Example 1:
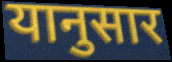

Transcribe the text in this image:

यानुसार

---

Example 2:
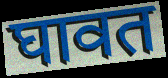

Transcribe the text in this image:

घावत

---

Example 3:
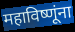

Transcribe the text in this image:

महाविष्णूंना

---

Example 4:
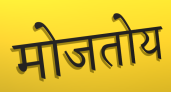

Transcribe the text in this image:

मोजतोय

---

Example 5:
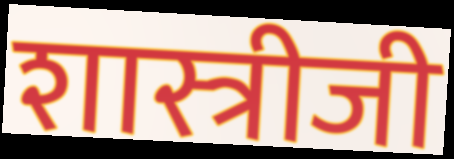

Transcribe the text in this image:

शास्त्रीजी